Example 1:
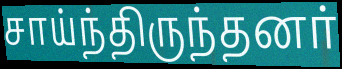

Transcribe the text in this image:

சாய்ந்திருந்தனர்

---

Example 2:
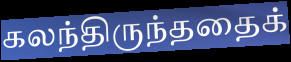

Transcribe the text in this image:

கலந்திருந்ததைக்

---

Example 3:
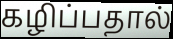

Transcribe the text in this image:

கழிப்பதால்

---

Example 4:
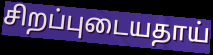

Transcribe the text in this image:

சிறப்புடையதாய்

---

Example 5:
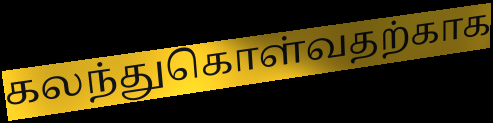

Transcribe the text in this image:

கலந்துகொள்வதற்காக